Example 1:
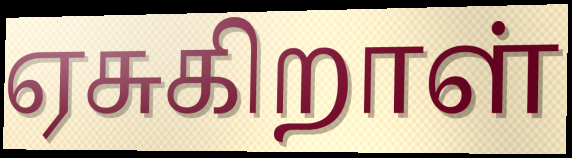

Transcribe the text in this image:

ஏசுகிறாள்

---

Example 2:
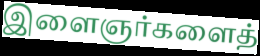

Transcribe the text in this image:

இளைஞர்களைத்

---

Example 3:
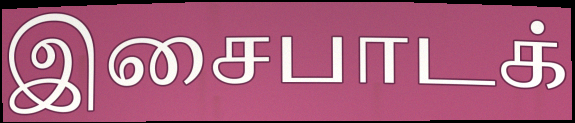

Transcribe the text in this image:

இசைபாடக்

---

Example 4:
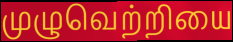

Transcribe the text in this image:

முழுவெற்றியை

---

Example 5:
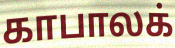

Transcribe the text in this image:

காபாலக்